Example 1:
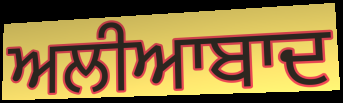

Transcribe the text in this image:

ਅਲੀਆਬਾਦ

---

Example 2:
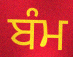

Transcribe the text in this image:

ਬੰਮ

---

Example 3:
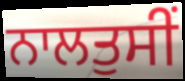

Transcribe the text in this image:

ਨਾਲਤੁਸੀਂ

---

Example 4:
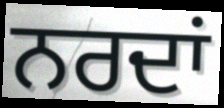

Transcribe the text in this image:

ਨਰਦਾਂ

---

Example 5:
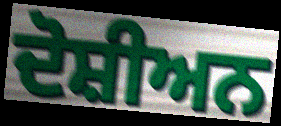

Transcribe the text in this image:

ਦੋਸ਼ੀਅਨ